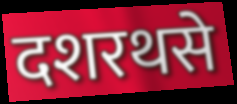
दशरथसे